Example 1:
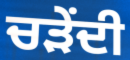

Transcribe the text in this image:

ਚੜੇਂਦੀ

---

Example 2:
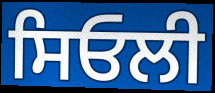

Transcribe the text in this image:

ਸਿਓਲੀ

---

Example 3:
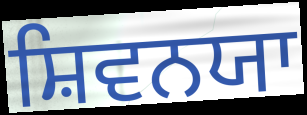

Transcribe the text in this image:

ਸ਼ਿਵਨਯਾ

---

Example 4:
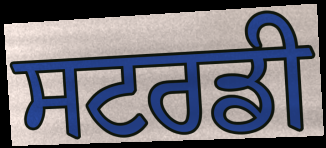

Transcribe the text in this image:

ਸਟਰਡੀ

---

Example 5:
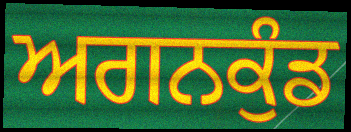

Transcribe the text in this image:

ਅਗਨਕੁੰਡ